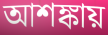
আশঙ্কায়